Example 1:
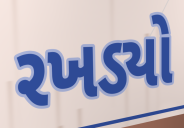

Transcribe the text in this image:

રખડ્યો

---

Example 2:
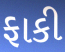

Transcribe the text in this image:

ફાકી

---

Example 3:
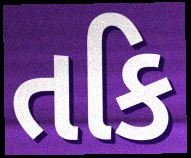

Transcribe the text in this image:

તકિ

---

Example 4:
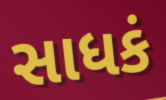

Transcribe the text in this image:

સાધકં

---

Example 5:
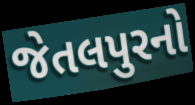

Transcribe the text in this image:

જેતલપુરનો